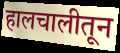
हालचालीतून